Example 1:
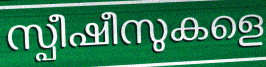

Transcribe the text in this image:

സ്പീഷീസുകളെ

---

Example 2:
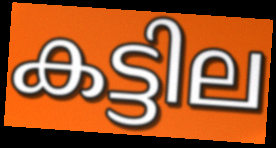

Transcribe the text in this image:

കട്ടില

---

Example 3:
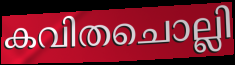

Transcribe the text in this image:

കവിതചൊല്ലി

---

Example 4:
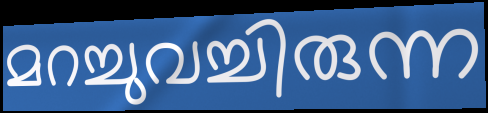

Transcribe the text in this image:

മറച്ചുവച്ചിരുന്ന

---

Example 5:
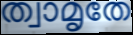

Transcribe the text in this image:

ത്വാമൃതേ